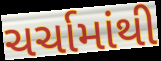
ચર્ચામાંથી